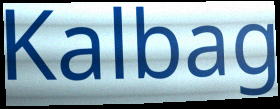
Kalbag